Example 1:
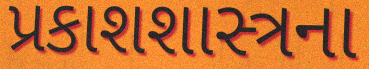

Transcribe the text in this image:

પ્રકાશશાસ્ત્રના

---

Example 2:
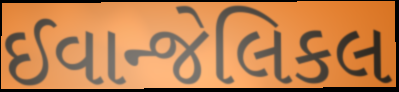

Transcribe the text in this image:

ઈવાન્જેલિકલ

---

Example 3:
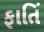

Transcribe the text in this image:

ફાતિં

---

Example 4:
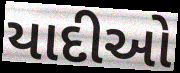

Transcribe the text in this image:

યાદીઓ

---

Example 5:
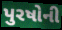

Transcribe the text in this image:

પુરષોની